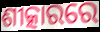
ଶୀତ୍କାରରେ